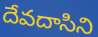
దేవదాసిని